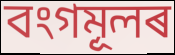
বংগমূলৰ